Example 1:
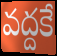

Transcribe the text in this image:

వద్దకే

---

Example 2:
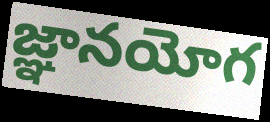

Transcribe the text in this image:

జ్ఞానయోగ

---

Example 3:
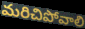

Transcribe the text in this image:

మరిచిపోవాలి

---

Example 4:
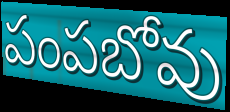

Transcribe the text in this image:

పంపబోవు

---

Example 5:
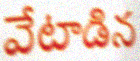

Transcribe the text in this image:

వేటాడిన